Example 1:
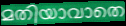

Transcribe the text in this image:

മതിയാവാതെ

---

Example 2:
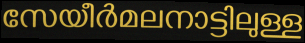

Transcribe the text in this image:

സേയീർമലനാട്ടിലുള്ള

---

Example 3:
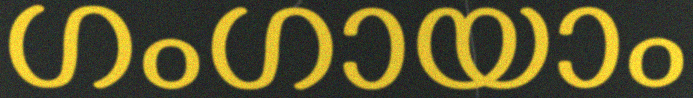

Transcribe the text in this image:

ഗംഗായാം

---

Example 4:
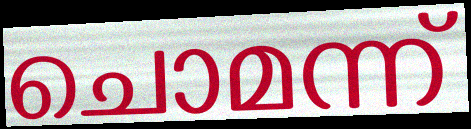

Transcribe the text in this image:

ചൊമന്ന്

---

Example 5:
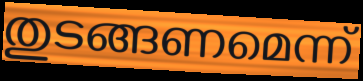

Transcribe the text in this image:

തുടങ്ങണമെന്ന്